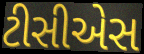
ટીસીએસ